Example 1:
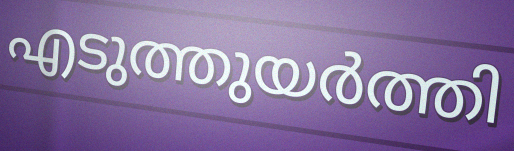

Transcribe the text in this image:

എടുത്തുയർത്തി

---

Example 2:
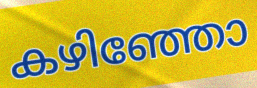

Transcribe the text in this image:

കഴിഞ്ഞോ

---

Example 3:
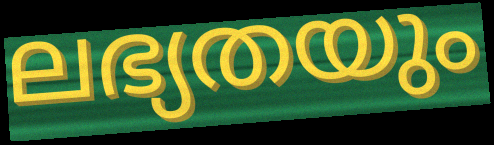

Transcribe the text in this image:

ലഭ്യതയും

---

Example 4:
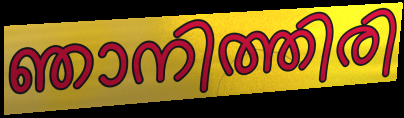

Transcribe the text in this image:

ഞാനിത്തിരി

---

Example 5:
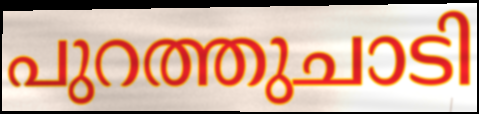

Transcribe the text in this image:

പുറത്തുചാടി